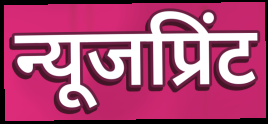
न्यूजप्रिंट